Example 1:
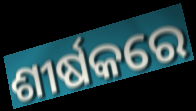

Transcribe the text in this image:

ଶୀର୍ଷକରେ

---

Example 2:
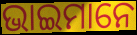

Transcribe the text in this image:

ଭାଇମାନେ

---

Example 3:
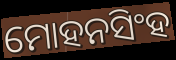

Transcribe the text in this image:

ମୋହନସିଂହ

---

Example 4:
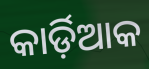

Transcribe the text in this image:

କାର୍ଡ଼ିଆକ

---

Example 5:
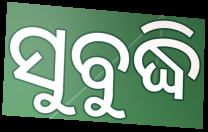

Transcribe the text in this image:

ସୁବୁଦ୍ଧି